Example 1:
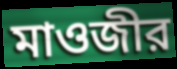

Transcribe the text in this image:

মাওজীর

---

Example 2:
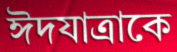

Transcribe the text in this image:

ঈদযাত্রাকে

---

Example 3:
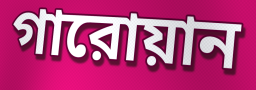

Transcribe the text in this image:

গারোয়ান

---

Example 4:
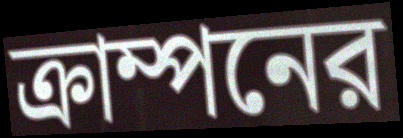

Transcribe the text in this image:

ক্রাম্পনের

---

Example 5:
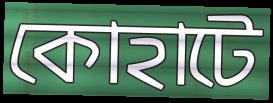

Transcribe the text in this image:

কোহাটে